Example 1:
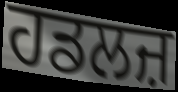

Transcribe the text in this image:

ਹਡਲਜ਼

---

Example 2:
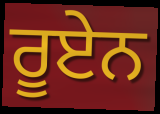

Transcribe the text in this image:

ਰੂਏਨ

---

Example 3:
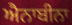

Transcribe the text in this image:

ਐਨਾਬੀਨਾ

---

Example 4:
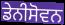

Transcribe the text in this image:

ਡੇਨੀਸੋਵਨ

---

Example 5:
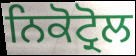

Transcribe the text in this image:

ਨਿਕੋਟ੍ਰੋਲ